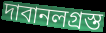
দাবানলগ্রস্ত